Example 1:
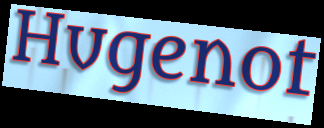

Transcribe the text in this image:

Hugenot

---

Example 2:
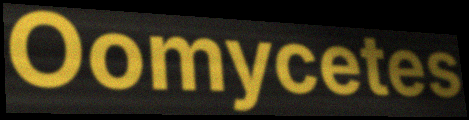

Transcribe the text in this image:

Oomycetes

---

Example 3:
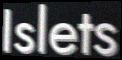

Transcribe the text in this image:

Islets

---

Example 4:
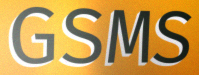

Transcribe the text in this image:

GSMS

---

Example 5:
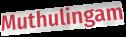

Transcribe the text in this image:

Muthulingam